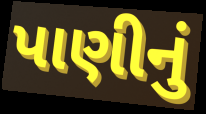
પાણીનું